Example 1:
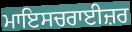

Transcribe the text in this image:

ਮਾਇਸਚਰਾਈਜ਼ਰ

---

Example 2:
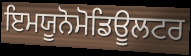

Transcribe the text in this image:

ਇਮਯੂਨੋਮੋਡਿਊਲਟਰ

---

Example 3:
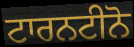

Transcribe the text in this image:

ਟਾਰਨਟੀਨੋ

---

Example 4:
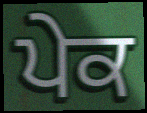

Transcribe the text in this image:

ਪੇਕ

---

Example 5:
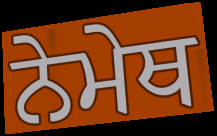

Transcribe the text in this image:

ਨੇਮੇਥ